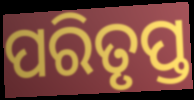
ପରିତୃପ୍ତ